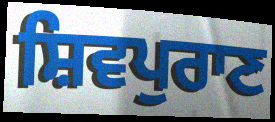
ਸ਼ਿਵਪੁਰਾਣ